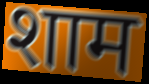
शाम